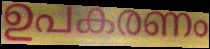
ഉപകരണം